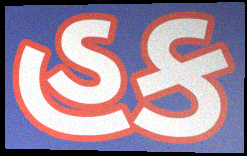
હક